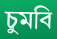
চুমবি